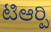
ಟಿಆರ್‍ಪಿ